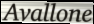
Avallone